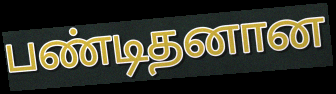
பண்டிதனான